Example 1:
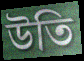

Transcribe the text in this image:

উতি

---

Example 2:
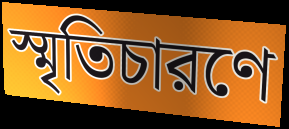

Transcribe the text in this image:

স্মৃতিচারণে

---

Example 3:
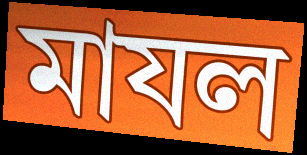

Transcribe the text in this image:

মাযল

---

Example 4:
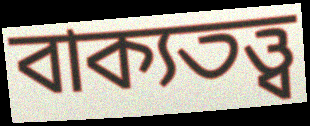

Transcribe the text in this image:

বাক্যতত্ত্ব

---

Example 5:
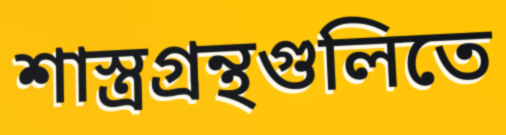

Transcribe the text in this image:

শাস্ত্রগ্রন্থগুলিতে